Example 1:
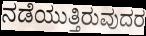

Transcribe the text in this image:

ನಡೆಯುತ್ತಿರುವುದರ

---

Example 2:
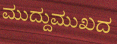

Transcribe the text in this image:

ಮುದ್ದುಮುಖದ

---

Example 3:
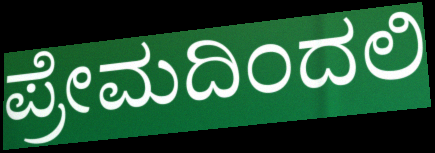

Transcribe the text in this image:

ಪ್ರೇಮದಿಂದಲಿ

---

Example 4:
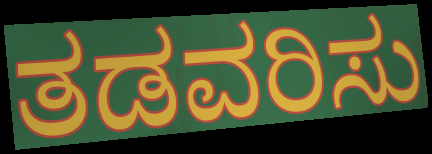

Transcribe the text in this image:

ತಡವರಿಸು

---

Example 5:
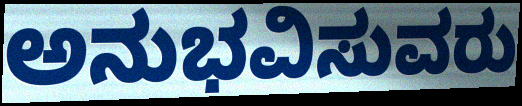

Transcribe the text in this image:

ಅನುಭವಿಸುವರು